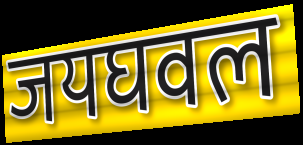
जयघवल